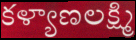
కళ్యాణలక్ష్మి